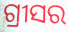
ଗ୍ରୀସର